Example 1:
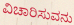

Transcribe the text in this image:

ವಿಚಾರಿಸುವನು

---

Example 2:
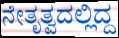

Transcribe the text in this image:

ನೇತೃತ್ವದಲ್ಲಿದ್ದ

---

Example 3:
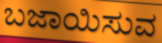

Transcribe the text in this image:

ಬಜಾಯಿಸುವ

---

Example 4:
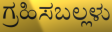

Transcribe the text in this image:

ಗ್ರಹಿಸಬಲ್ಲಳು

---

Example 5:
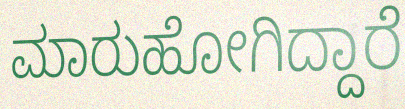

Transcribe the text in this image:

ಮಾರುಹೋಗಿದ್ದಾರೆ